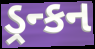
ડ્રન્કન